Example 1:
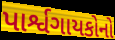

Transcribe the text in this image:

પાર્શ્વગાયકોનો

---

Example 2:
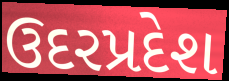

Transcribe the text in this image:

ઉદરપ્રદેશ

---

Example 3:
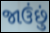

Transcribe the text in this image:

જાઉંછું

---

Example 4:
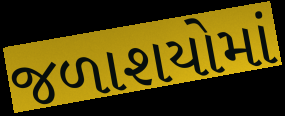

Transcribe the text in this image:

જળાશયોમાં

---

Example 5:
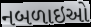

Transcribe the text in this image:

નબળાઇઓ